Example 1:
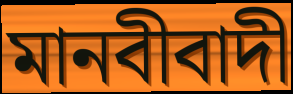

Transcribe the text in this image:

মানবীবাদী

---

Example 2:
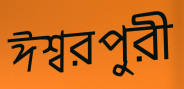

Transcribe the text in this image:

ঈশ্বরপুরী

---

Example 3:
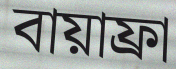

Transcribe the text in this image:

বায়াফ্রা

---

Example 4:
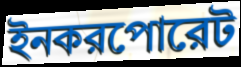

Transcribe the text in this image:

ইনকরপোরেট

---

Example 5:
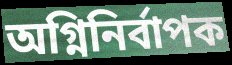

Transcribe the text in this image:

অগ্নিনির্বাপক